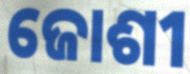
ଜୋଶୀ